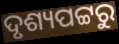
ଦୃଶ୍ୟପଟ୍ଟରୁ